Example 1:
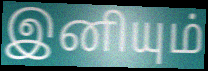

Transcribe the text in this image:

இனியும்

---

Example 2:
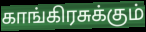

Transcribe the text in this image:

காங்கிரசுக்கும்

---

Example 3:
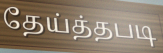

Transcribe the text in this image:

தேய்த்தபடி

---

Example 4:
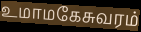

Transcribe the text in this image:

உமாமகேசுவரம்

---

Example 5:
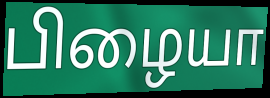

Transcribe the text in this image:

பிழையா